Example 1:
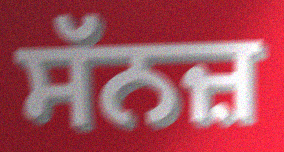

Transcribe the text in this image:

ਸੱਨਜ਼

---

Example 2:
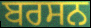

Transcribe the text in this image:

ਬਰਸਨ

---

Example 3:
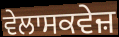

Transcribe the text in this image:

ਵੇਲਾਸਕਵੇਜ਼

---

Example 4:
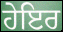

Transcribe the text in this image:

ਹੇਇਰ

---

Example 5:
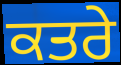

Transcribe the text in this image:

ਕਤਰੇ